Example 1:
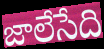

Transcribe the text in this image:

జాలేసేది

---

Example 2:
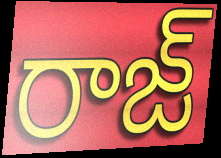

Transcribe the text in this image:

రాజ్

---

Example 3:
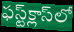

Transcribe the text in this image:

ఫస్ట్‌క్లాస్‌లో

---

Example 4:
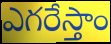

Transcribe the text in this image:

ఎగరేస్తాం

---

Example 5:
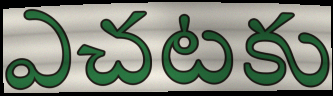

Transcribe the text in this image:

ఎచటకు